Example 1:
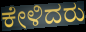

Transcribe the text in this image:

ಕೇಳಿದರು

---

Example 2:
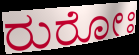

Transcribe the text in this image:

ರುರೋಃ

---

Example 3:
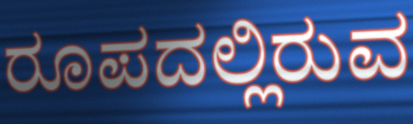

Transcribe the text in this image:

ರೂಪದಲ್ಲಿರುವ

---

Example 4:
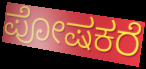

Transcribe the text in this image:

ಪೋಷಕರೆ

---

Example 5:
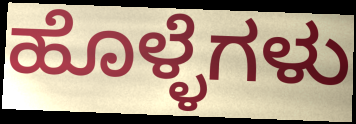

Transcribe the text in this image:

ಹೊಳ್ಳೆಗಳು